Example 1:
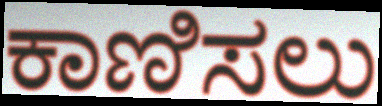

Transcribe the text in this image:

ಕಾಣಿಸಲು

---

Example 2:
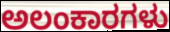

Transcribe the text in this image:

ಅಲಂಕಾರಗಳು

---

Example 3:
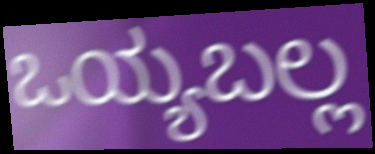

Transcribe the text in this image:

ಒಯ್ಯಬಲ್ಲ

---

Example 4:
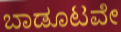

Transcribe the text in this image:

ಬಾಡೂಟವೇ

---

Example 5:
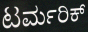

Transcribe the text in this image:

ಟರ್ಮರಿಕ್